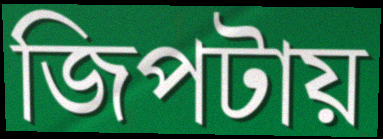
জিপটায়